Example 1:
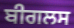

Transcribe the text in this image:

ਬੀਗਲਸ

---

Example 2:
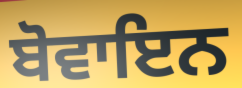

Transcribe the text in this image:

ਬੋਵਾਇਨ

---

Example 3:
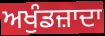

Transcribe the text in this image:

ਅਖੁੰਡਜ਼ਾਦਾ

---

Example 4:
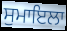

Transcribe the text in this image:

ਸੁਮਾਇਲਾ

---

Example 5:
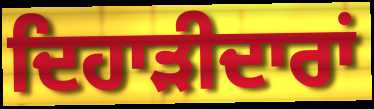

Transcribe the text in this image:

ਦਿਹਾੜੀਦਾਰਾਂ